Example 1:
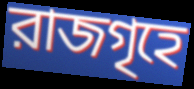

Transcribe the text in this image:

রাজগৃহে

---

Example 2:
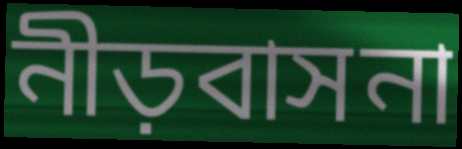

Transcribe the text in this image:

নীড়বাসনা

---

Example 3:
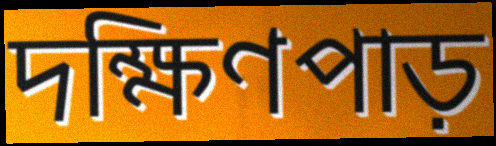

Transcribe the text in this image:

দক্ষিণপাড়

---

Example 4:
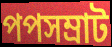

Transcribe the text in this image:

পপসম্রাট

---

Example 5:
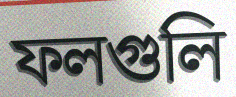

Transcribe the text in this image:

ফলগুলি